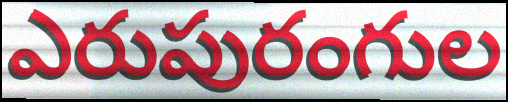
ఎరుపురంగుల